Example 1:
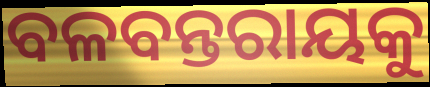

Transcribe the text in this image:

ବଳବନ୍ତରାୟକୁ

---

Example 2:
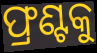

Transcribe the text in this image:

ଫ୍ରଣ୍ଟକୁ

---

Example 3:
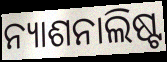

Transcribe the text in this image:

ନ୍ୟାଶନାଲିଷ୍ଟ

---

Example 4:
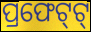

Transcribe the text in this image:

ପ୍ରଫେଟ୍‌ଟ୍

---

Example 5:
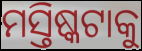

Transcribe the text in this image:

ମସ୍ତିଷ୍କଟାକୁ